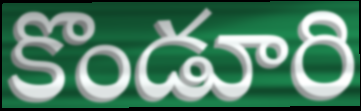
కొండూరి